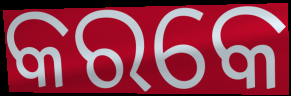
କରକେ